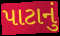
પાટાનું